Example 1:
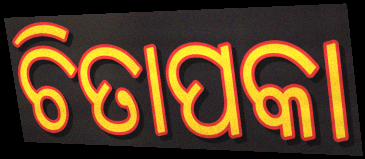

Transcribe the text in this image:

ଚିତାପକା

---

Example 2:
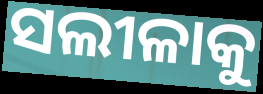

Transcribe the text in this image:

ସଲୀଳାକୁ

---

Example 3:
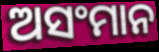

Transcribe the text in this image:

ଅସଂମାନ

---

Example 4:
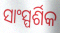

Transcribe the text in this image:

ସାଂସ୍ପର୍ଶିକ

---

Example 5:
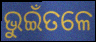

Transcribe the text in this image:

ଭୁଇଁତଳେ